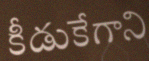
కీడుకేగాని